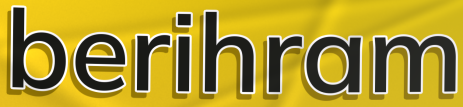
berihram